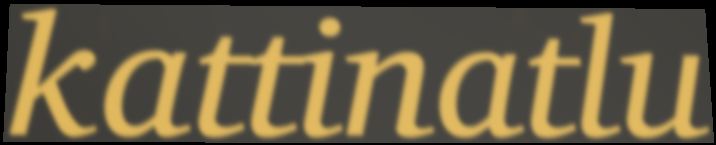
kattinatlu